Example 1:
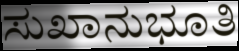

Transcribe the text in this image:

ಸುಖಾನುಭೂತಿ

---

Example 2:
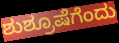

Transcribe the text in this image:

ಶುಶ್ರೂಷೆಗೆಂದು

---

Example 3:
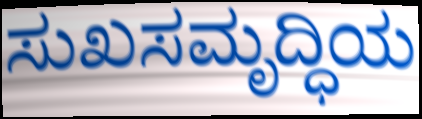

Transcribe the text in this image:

ಸುಖಸಮೃದ್ಧಿಯ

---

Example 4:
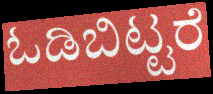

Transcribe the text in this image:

ಓಡಿಬಿಟ್ಟರೆ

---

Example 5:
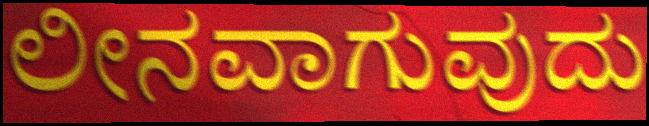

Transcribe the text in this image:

ಲೀನವಾಗುವುದು